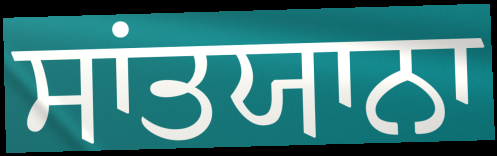
ਸਾਂਤਯਾਨਾ